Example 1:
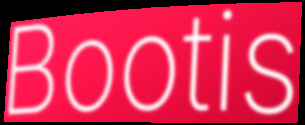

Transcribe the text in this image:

Bootis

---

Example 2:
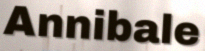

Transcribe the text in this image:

Annibale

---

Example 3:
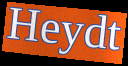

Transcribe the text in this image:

Heydt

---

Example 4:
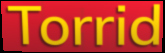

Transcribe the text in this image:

Torrid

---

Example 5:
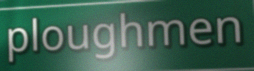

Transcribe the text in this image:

ploughmen